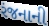
રંજનાની